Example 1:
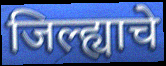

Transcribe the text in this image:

जिल्ह्याचे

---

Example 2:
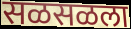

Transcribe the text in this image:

सळसळला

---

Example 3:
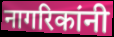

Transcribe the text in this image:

नागरिकांनी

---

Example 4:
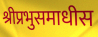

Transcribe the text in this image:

श्रीप्रभुसमाधीस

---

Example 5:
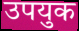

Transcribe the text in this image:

उपयुक